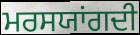
ਮਰਸਯਾਂਗਦੀ